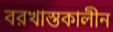
বরখাস্তকালীন